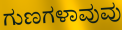
ಗುಣಗಳಾವುವು